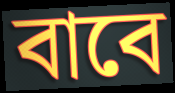
বাবে